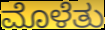
ಮೊಳೆತು